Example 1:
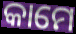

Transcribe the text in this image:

କାମେ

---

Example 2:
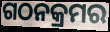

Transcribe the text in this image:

ଗଠନକ୍ରମର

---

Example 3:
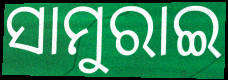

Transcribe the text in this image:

ସାମୁରାଇ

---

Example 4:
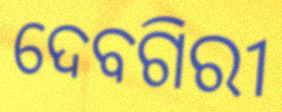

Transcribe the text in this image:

ଦେବଗିରୀ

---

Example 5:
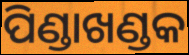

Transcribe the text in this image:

ପିଣ୍ଡାଖଣ୍ଡକ